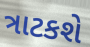
ત્રાટકશે